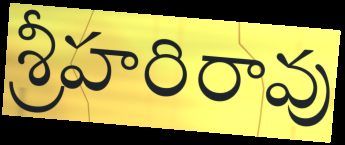
శ్రీహరిరావు